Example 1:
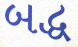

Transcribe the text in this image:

બદ્ધ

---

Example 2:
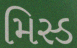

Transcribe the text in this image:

મિસ્ડ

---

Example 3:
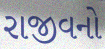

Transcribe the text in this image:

રાજીવનો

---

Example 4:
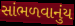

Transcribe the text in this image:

સાંભળવાનુંય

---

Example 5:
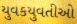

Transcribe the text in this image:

યુવકયુવતીઓ